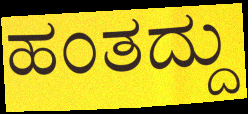
ಹಂತದ್ದು